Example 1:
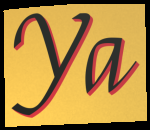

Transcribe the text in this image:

Ya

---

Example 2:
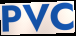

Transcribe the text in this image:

PVC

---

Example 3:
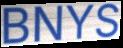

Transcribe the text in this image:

BNYS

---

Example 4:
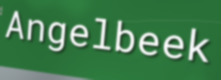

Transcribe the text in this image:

Angelbeek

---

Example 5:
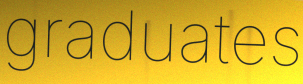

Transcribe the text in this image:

graduates